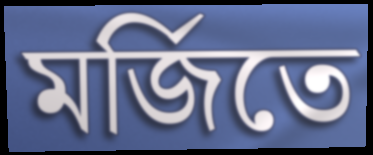
মর্জিতে